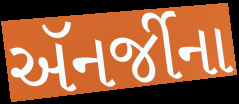
ઍનર્જીના